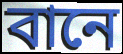
বানে